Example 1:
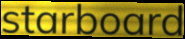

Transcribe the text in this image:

starboard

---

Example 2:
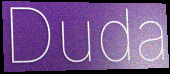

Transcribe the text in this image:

Duda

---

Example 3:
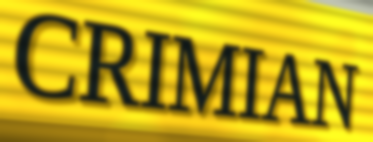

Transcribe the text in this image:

CRIMIAN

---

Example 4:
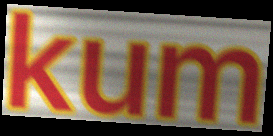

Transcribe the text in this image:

kum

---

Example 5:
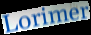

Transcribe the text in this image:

Lorimer